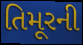
તિમૂરની